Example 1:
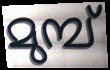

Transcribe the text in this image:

മുമ്പ്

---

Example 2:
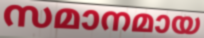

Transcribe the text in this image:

സമാനമായ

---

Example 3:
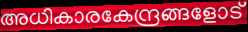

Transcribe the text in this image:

അധികാരകേന്ദ്രങ്ങളോട്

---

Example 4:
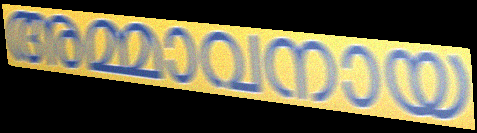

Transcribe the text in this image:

അമ്മാവനായ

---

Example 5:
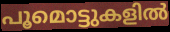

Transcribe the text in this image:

പൂമൊട്ടുകളിൽ